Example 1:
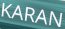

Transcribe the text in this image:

KARAN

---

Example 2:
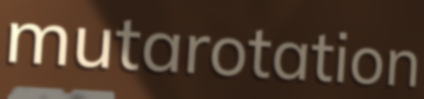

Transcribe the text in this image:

mutarotation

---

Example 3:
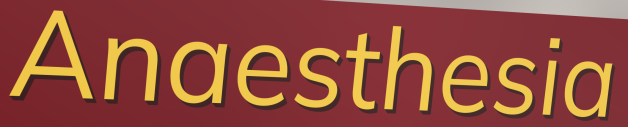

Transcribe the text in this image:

Anaesthesia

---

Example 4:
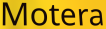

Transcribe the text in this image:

Motera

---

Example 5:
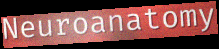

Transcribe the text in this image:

Neuroanatomy